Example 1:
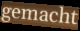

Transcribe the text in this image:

gemacht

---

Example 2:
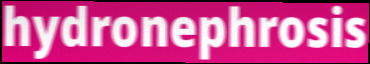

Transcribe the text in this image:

hydronephrosis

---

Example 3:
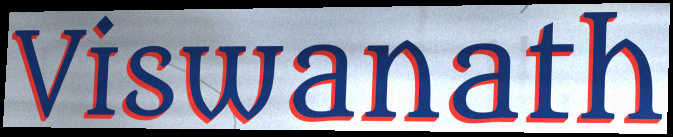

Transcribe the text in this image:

Viswanath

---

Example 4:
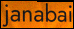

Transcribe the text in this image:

janabai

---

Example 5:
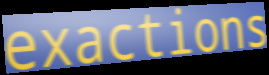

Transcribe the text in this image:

exactions